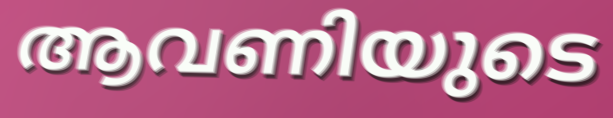
ആവണിയുടെ